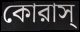
কোরাস্